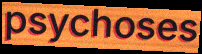
psychoses